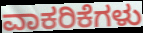
ವಾಕರಿಕೆಗಳು